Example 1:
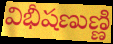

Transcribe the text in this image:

విభీషణుణ్ణి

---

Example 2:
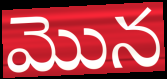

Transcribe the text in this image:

మొన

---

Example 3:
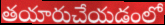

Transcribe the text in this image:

తయారుచేయడంలో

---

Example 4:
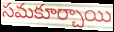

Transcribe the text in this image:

సమకూర్చాయి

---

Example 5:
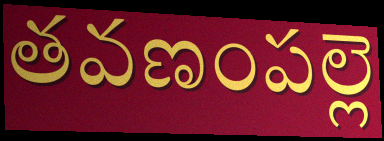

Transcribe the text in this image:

తవణంపల్లె